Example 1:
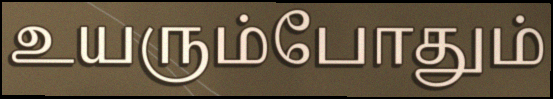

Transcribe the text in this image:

உயரும்போதும்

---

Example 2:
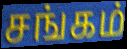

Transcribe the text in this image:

சங்கம்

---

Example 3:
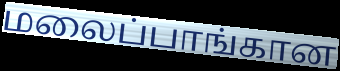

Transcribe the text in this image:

மலைப்பாங்கான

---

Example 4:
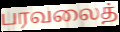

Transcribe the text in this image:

பரவலைத்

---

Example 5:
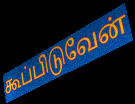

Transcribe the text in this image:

கூப்பிடுவேன்